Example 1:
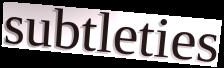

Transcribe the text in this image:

subtleties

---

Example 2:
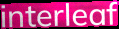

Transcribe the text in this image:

interleaf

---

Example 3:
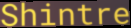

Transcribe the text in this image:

Shintre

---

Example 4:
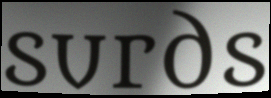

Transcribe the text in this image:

surds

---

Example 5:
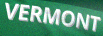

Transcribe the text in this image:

VERMONT